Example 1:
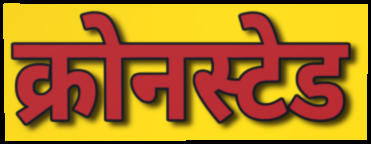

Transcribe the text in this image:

क्रोनस्टेड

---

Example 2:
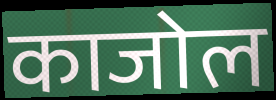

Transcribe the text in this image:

काजोल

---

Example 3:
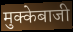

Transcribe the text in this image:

मुक्केबाजी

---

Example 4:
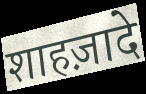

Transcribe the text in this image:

शाहज़ादे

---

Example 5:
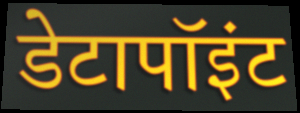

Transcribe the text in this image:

डेटापॉइंट